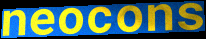
neocons